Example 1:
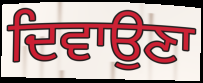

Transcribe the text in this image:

ਦਿਵਾਉਣਾ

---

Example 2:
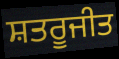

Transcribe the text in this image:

ਸ਼ਤਰੂਜੀਤ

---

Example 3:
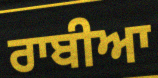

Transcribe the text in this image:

ਰਾਬੀਆ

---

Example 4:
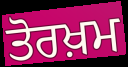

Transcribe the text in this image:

ਤੋਰਖ਼ਮ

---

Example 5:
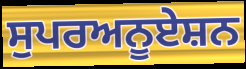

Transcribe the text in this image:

ਸੁਪਰਅਨੂਏਸ਼ਨ